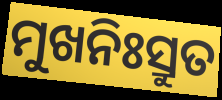
ମୁଖନିଃସ୍ରୁତ